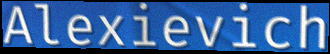
Alexievich